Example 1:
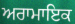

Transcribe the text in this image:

ਅਰਾਮਾਇਕ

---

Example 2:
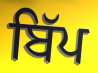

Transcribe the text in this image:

ਬਿੱਪ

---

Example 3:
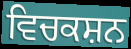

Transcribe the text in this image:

ਵਿਚਕਸ਼ਨ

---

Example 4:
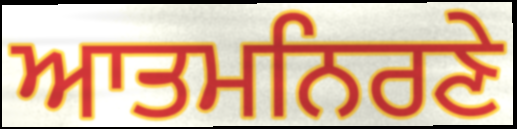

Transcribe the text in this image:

ਆਤਮਨਿਰਣੇ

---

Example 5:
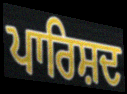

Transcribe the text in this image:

ਪਾਰਿਸ਼ਦ